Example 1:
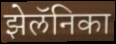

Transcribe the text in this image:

झेलॅनिका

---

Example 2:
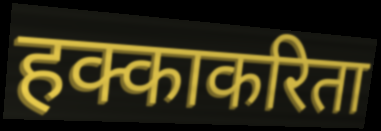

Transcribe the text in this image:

हक्काकरिता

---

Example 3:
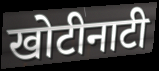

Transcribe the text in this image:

खोटीनाटी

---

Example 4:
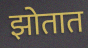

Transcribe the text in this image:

झोतात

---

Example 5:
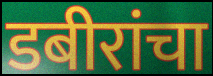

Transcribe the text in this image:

डबीरांचा